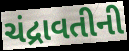
ચંદ્રાવતીની